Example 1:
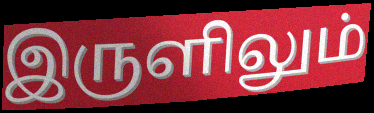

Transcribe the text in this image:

இருளிலும்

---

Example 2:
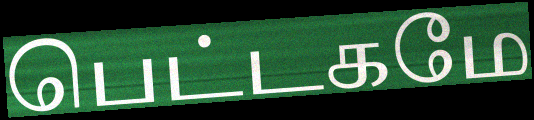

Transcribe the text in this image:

பெட்டகமே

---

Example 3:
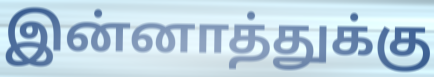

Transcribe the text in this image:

இன்னாத்துக்கு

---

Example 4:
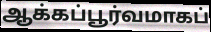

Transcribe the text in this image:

ஆக்கப்பூர்வமாகப்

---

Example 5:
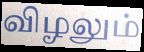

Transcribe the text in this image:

விழலும்